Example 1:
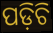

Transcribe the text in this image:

ପଡ଼ିଚି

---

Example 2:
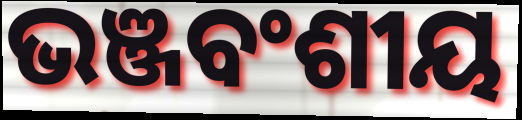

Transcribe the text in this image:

ଭଞ୍ଜବଂଶୀୟ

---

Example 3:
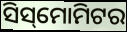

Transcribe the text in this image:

ସିସ୍‌ମୋମିଟର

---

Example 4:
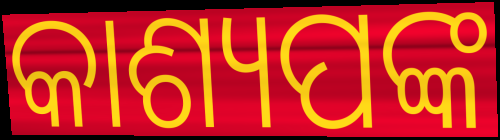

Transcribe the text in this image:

କାଶ୍ୟପଙ୍କ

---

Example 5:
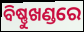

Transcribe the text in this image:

ବିଷ୍ଣୁଖଣ୍ଡରେ